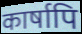
कार्षापि